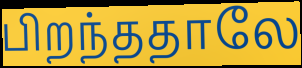
பிறந்ததாலே